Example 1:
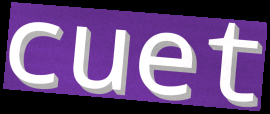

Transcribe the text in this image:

cuet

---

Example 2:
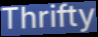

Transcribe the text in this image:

Thrifty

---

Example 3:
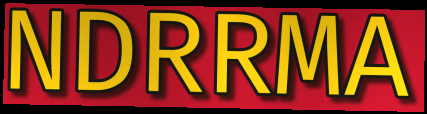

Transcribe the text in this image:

NDRRMA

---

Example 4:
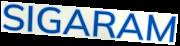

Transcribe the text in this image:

SIGARAM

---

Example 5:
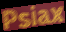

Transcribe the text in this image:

Psiax